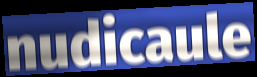
nudicaule